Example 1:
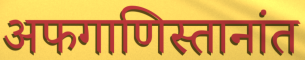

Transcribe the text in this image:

अफगाणिस्तानांत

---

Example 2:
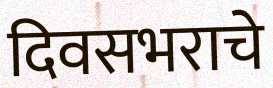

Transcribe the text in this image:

दिवसभराचे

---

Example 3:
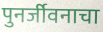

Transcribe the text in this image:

पुनर्जीवनाचा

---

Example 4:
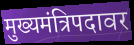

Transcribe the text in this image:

मुख्यमंत्रिपदावर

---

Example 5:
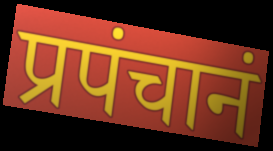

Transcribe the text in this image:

प्रपंचानं